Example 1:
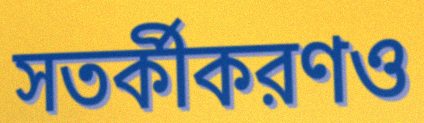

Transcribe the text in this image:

সতর্কীকরণও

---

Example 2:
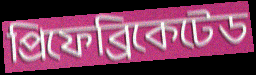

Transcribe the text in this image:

প্রিফেব্রিকেটেড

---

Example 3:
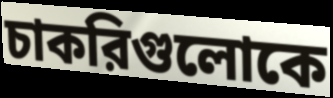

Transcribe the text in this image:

চাকরিগুলোকে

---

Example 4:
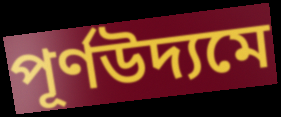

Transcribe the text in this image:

পূর্ণউদ্যমে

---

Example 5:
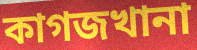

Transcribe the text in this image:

কাগজখানা